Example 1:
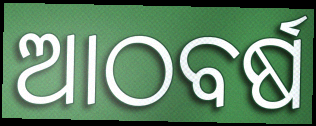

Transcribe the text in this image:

ଆଠବର୍ଷ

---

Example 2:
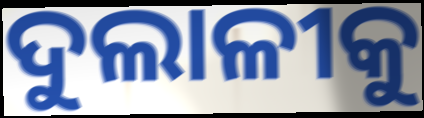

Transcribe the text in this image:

ଦୁଲାଳୀକୁ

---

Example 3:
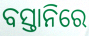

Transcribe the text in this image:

ବସ୍ତାନିରେ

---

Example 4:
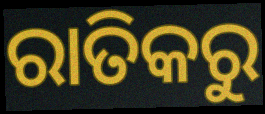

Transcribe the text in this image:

ରାତିକରୁ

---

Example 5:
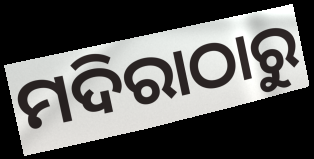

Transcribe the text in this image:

ମଦିରାଠାରୁ